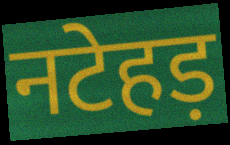
नटेहड़